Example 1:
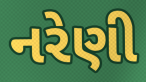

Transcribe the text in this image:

નરેણી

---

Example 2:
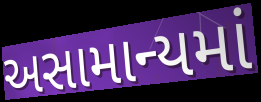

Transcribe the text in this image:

અસામાન્યમાં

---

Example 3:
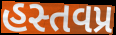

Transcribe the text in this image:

હસ્તવપ્ર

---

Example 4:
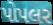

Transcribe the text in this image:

પોપલર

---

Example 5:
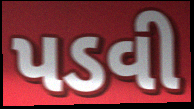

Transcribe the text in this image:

પડવી